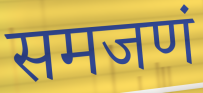
समजणं